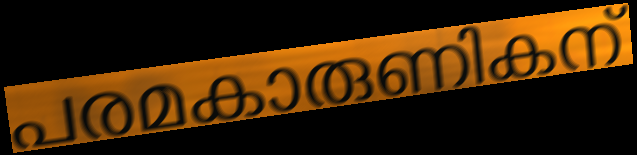
പരമകാരുണികന്